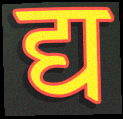
द्य